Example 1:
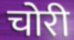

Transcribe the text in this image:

चोरी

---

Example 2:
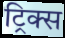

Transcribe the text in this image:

ट्रिक्‍स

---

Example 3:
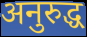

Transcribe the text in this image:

अनुरुद्ध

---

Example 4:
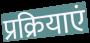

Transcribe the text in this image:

प्रक्रियाएं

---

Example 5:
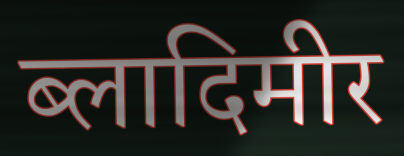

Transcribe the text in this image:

ब्लादिमीर